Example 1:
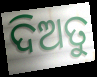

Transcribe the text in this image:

ଦିଅତୁ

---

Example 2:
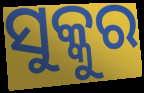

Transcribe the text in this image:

ସୁକ୍କୁର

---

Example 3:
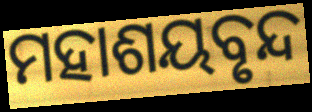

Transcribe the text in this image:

ମହାଶୟବୃନ୍ଦ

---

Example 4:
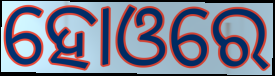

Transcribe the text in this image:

ହୋଓରେ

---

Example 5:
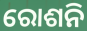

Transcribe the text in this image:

ରୋଶନି